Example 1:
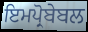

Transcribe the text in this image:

ਇਮਪ੍ਰੋਬੇਬਲ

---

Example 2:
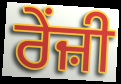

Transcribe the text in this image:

ਰੇਂਜ਼ੀ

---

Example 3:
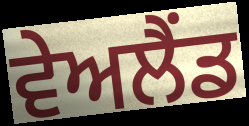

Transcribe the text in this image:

ਵੇਅਲੈਂਡ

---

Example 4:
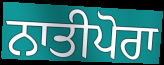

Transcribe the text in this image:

ਨਾਤੀਪੋਰਾ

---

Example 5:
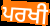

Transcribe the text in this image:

ਪਰਖੀ